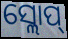
ସ୍ଲୋପ୍